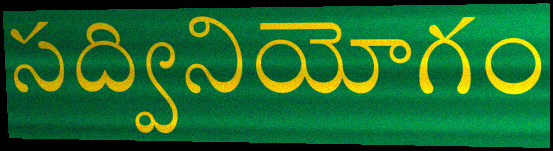
సద్వినియోగం